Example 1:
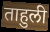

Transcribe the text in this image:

ताहुली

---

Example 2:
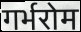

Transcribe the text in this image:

गर्भरोम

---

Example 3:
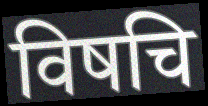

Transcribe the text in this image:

विषचि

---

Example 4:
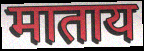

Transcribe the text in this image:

माताय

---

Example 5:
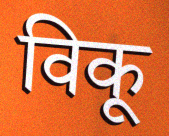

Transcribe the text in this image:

विकू